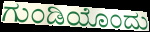
ಗುಂಡಿಯೊಂದು